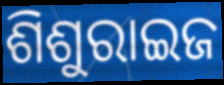
ଶିଶୁରାଇଜ